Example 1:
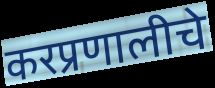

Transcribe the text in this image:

करप्रणालीचे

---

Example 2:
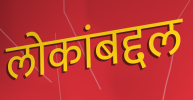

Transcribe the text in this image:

लोकांबद्दल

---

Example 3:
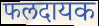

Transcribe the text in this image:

फलदायक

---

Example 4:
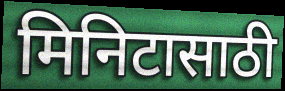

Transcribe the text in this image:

मिनिटासाठी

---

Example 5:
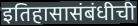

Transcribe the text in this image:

इतिहासासंबंधीची